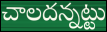
చాలదన్నట్టు